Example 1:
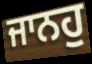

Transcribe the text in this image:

ਜਾਨਹੁ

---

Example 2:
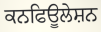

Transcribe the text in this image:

ਕਨਫਿਊਲੇਸ਼ਨ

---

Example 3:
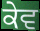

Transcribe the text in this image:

ਕੇਵ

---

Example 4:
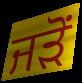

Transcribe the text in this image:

ਜਡ਼ੋਂ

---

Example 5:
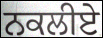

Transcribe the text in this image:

ਨਕਲੀਏ